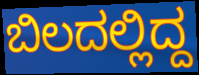
ಬಿಲದಲ್ಲಿದ್ದ